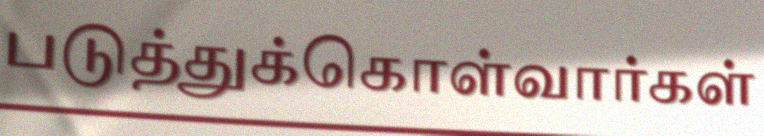
படுத்துக்கொள்வார்கள்